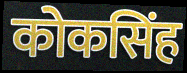
कोकसिंह